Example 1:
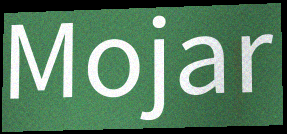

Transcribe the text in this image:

Mojar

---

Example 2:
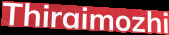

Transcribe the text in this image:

Thiraimozhi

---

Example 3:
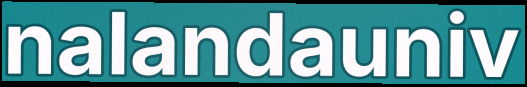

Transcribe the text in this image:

nalandauniv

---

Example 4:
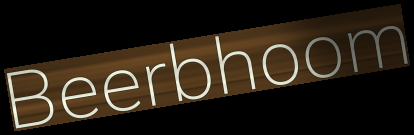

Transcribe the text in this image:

Beerbhoom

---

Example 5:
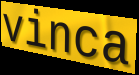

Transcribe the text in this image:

vinca